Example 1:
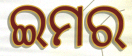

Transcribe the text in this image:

ଇମର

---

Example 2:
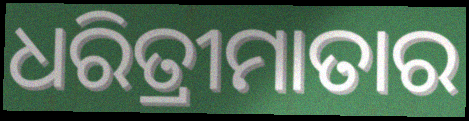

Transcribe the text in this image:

ଧରିତ୍ରୀମାତାର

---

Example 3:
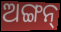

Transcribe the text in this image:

ଅଙ୍ଗନ୍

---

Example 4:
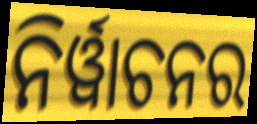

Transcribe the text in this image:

ନିର୍ୱାଚନର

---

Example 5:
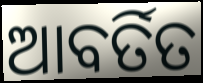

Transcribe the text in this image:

ଆବର୍ତିତ